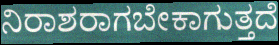
ನಿರಾಶರಾಗಬೇಕಾಗುತ್ತದೆ